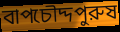
বাপচৌদ্দপুরুষ